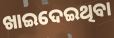
ଖାଇଦେଇଥିବା